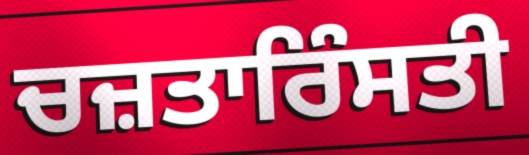
ਚਜ਼ਤਾਰਿੰਸਤੀ